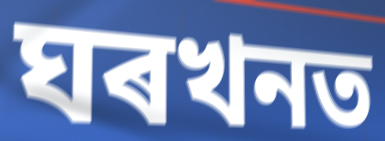
ঘৰখনত